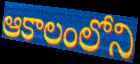
ఆకాలంలోని